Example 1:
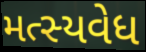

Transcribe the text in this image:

મત્સ્યવેધ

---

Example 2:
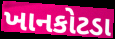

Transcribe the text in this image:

ખાનકોટડા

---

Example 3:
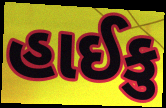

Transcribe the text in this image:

હાઈકુ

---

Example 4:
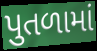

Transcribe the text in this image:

પુતળામાં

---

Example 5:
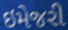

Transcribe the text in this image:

ઇમેજરી